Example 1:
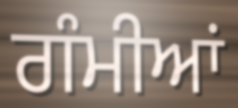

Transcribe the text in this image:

ਗੰਮੀਆਂ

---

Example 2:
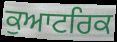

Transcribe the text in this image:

ਕੁਆਟਰਿਕ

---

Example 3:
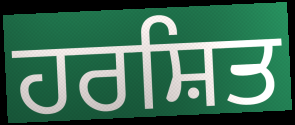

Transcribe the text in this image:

ਹਰਸ਼ਿਤ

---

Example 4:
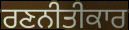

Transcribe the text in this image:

ਰਣਨੀਤੀਕਾਰ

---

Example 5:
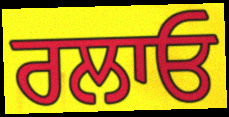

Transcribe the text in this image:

ਰਲਾਓ